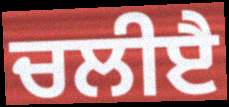
ਚਲੀੲੈ